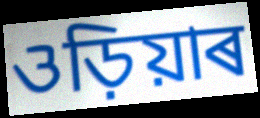
ওড়িয়াৰ